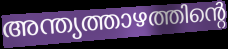
അന്ത്യത്താഴത്തിന്റെ